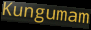
Kungumam